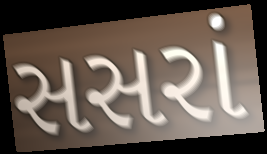
સસરાં